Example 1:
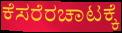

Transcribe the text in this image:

ಕೆಸರೆರಚಾಟಕ್ಕೆ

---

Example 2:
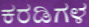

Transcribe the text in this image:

ಕರಡಿಗಳ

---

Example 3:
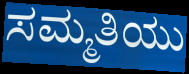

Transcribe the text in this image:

ಸಮ್ಮತಿಯು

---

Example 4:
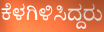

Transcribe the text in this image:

ಕೆಳಗಿಳಿಸಿದ್ದರು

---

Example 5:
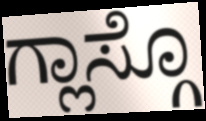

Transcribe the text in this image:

ಗ್ಲಾಸ್ಗೊ